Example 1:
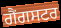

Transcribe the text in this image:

ਗੈਂਗਸਟਰ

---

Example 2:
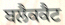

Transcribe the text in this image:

ਬਲੈਕਕੈਟ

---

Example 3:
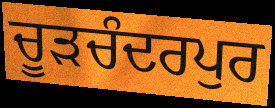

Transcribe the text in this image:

ਚੂੜਚੰਦਰਪੁਰ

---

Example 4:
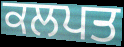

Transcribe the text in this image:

ਕਲਪਤ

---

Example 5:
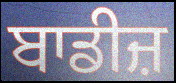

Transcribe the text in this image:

ਬਾਡੀਜ਼